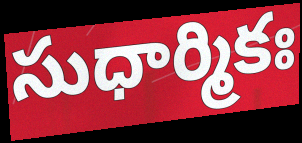
సుధార్మికః